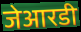
जेआरडी